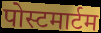
पोस्‍टमार्टम